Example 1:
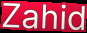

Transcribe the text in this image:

Zahid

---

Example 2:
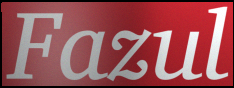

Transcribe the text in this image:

Fazul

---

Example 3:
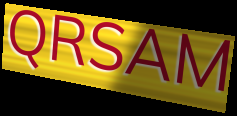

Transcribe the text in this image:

QRSAM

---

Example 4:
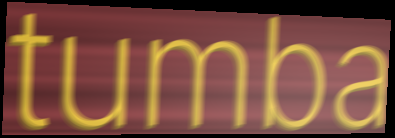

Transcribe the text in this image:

tumba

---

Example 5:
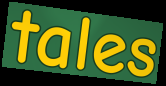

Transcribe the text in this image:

tales